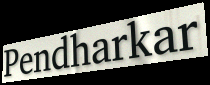
Pendharkar